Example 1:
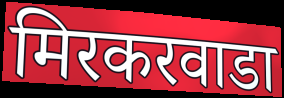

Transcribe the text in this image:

मिरकरवाडा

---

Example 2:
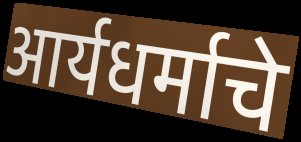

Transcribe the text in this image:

आर्यधर्माचे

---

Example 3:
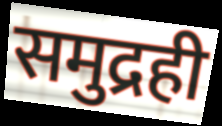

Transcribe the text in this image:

समुद्रही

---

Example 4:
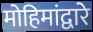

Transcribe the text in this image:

मोहिमांद्वारे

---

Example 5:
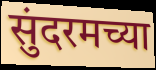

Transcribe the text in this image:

सुंदरमच्या